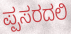
ಪ್ಪಸರದಲಿ